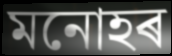
মনোহৰ